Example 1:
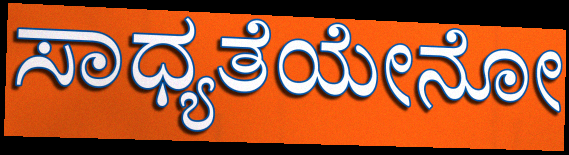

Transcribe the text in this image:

ಸಾಧ್ಯತೆಯೇನೋ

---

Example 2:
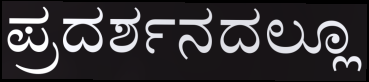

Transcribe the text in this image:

ಪ್ರದರ್ಶನದಲ್ಲೂ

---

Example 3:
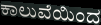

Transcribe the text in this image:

ಕಾಲುವೆಯಿಂದ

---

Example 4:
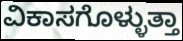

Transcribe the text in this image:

ವಿಕಾಸಗೊಳ್ಳುತ್ತಾ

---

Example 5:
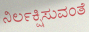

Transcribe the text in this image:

ನಿರ್ಲಕ್ಷಿಸುವಂತೆ